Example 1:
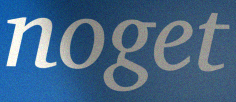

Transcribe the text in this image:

noget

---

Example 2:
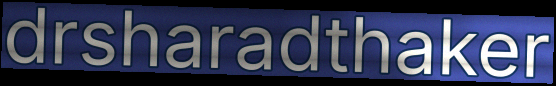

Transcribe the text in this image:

drsharadthaker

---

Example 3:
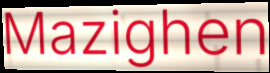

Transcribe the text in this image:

Mazighen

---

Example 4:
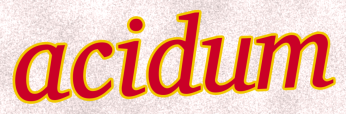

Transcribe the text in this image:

acidum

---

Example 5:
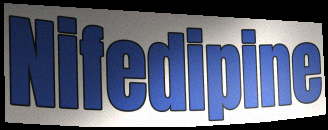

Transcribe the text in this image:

Nifedipine